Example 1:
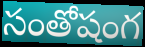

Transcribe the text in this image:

సంతోషంగ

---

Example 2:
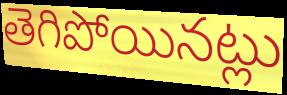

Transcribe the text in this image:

తెగిపోయినట్లు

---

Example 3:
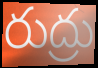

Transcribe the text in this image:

రుద్రు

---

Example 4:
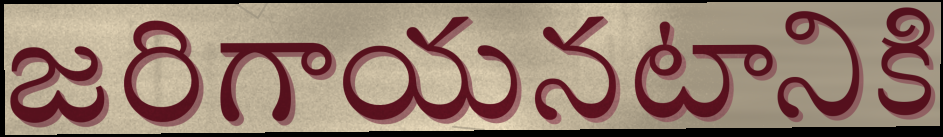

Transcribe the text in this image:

జరిగాయనటానికి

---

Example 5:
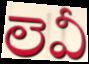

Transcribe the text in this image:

లెవీ